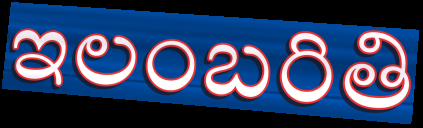
ఇలంబరితి